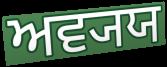
ਅਵ੍ਯਯ